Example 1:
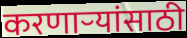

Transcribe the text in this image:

करणाऱ्यांसाठी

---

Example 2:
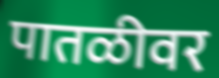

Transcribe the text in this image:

पातळीवर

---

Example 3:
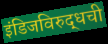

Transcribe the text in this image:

इंडिजविरुद्धची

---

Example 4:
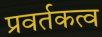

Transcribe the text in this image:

प्रवर्तकत्व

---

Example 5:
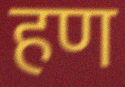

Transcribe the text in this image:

हण